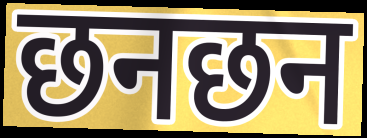
छनछन